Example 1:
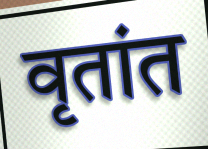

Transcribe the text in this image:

वृतांत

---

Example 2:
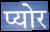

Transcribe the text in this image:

प्योर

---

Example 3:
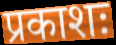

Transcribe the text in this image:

प्रकाशः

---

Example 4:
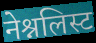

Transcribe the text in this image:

नेश्नलिस्ट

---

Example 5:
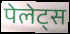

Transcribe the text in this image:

पेलेट्स